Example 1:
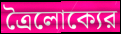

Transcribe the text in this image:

ত্রৈলোক্যের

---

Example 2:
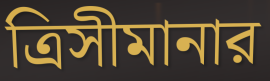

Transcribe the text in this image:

ত্রিসীমানার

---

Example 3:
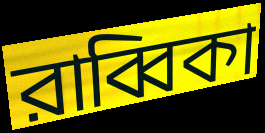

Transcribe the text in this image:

রাব্বিকা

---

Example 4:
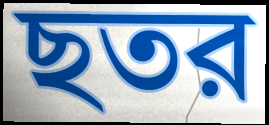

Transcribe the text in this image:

ছতর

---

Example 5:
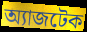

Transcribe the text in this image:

অ্যাজটেক